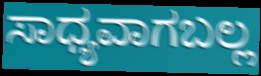
ಸಾಧ್ಯವಾಗಬಲ್ಲ